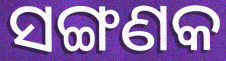
ସଙ୍ଗଣକ